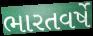
ભારતવર્ષે